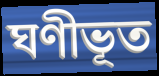
ঘণীভূত